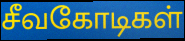
சீவகோடிகள்